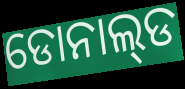
ଡୋନାଲ୍‌ଡ